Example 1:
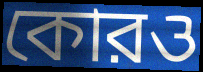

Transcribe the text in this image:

কোরও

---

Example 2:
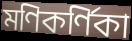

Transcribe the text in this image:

মণিকর্ণিকা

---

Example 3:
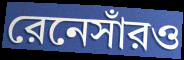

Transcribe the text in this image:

রেনেসাঁরও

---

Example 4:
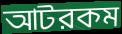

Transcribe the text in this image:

আটরকম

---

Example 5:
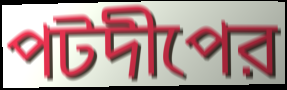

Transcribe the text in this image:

পটদীপের